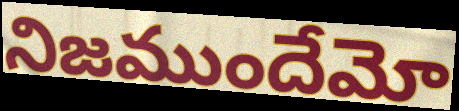
నిజముందేమో